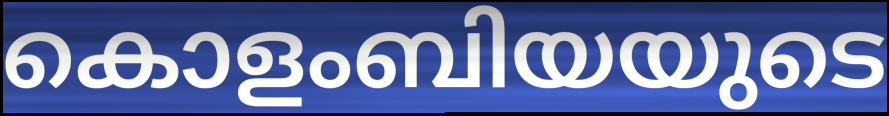
കൊളംബിയയുടെ